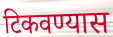
टिकवण्यास